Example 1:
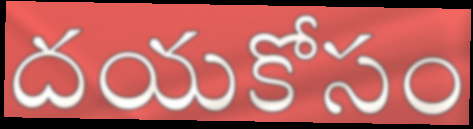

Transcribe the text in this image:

దయకోసం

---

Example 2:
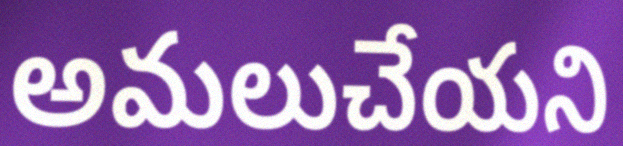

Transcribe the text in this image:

అమలుచేయని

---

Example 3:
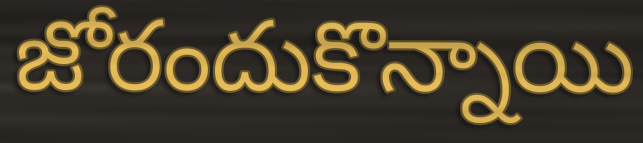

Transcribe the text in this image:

జోరందుకొన్నాయి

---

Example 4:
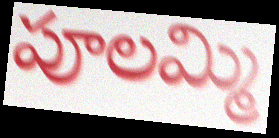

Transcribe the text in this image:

పూలమ్మి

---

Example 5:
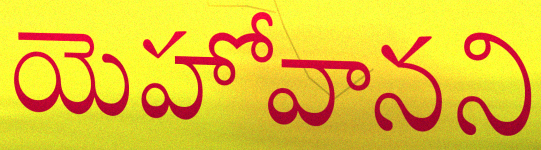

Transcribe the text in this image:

యెహోవానని